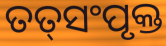
ତତ୍‌ସଂପୃକ୍ତ